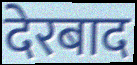
देरबाद